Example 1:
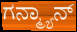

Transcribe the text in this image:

ಗನ್ಮ್ಯಾನ್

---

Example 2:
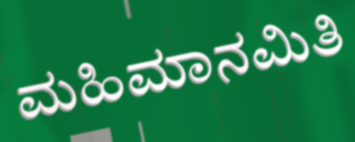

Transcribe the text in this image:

ಮಹಿಮಾನಮಿತಿ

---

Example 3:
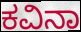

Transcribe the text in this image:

ಕವಿನಾ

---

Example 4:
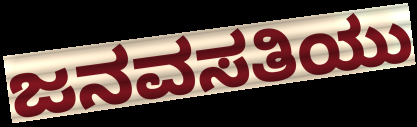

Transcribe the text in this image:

ಜನವಸತಿಯು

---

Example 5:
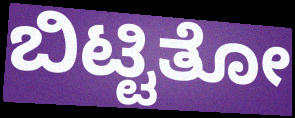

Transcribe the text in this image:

ಬಿಟ್ಟಿತೋ